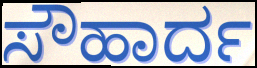
ಸೌಹಾರ್ದ